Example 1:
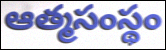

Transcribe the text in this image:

ఆత్మసంస్థం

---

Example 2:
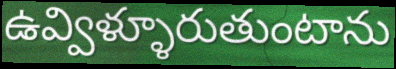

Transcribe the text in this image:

ఉవ్విళ్ళూరుతుంటాను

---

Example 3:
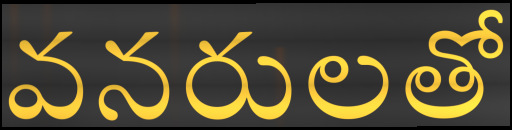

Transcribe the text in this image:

వనరులతో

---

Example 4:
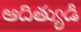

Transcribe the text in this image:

ఆదిత్యుడి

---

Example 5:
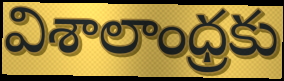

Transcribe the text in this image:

విశాలాంధ్రకు